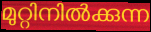
മുറ്റിനിൽക്കുന്ന